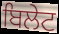
ਬਿਲੇਟ